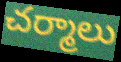
చర్మాలు